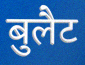
बुलैट